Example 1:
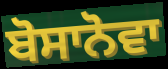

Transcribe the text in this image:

ਬੋਸਾਨੋਵਾ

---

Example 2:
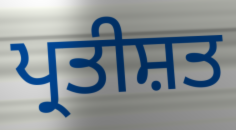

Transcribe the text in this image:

ਪ੍ਰਤੀਸ਼ਤ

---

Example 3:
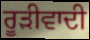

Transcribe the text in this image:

ਰੂੜੀਵਾਦੀ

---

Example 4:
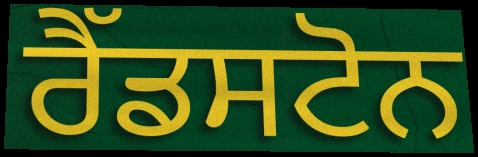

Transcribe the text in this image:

ਰੈੱਡਸਟੋਨ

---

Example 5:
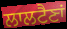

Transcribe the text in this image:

ਲਾਲਟੈਣਾਂ